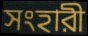
সংহারী